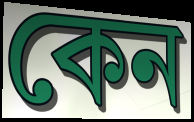
কেন